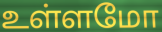
உள்ளமோ